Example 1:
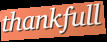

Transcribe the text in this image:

thankfull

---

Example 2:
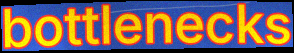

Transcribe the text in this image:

bottlenecks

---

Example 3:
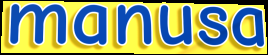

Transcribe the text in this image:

manusa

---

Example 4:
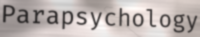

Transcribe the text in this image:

Parapsychology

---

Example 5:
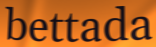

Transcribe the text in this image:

bettada